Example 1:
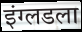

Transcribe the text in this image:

इंग्लडला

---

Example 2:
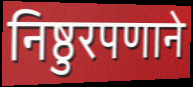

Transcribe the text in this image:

निष्ठुरपणाने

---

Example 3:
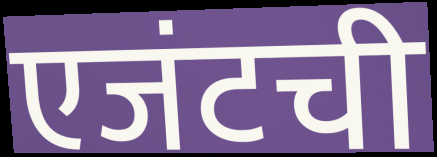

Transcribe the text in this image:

एजंटची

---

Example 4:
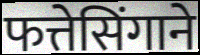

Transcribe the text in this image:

फत्तेसिंगाने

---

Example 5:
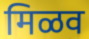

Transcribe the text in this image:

मिळव